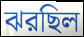
ঝরছিল